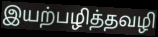
இயற்பழித்தவழி